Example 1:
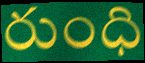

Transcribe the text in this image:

రుంధి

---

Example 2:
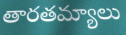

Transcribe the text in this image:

తారతమ్యాలు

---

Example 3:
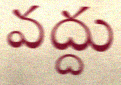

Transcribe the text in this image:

వద్దు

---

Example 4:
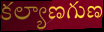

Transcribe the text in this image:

కల్యాణగుణ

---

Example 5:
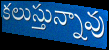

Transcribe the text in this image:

కలుస్తున్నావు